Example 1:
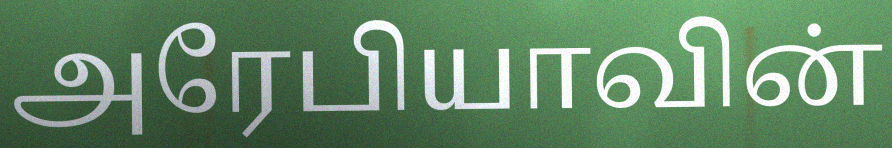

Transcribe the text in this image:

அரேபியாவின்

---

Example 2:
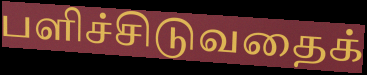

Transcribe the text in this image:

பளிச்சிடுவதைக்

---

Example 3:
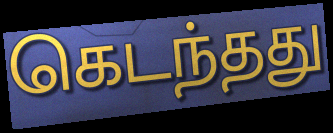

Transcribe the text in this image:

கெடந்தது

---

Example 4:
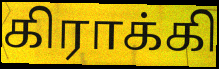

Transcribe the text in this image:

கிராக்கி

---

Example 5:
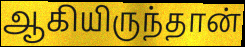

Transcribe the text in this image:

ஆகியிருந்தான்